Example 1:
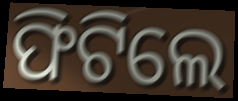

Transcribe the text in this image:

ଫିଟିଲେ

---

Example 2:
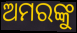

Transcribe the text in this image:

ଅମରଙ୍କୁ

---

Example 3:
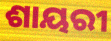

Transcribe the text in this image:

ଶାୟରୀ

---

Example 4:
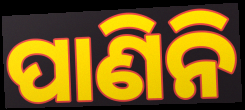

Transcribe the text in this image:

ପାଣିନି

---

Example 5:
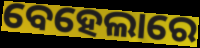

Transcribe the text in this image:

ବେହେଲାରେ